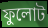
ফুলোট